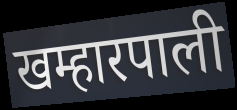
खम्हारपाली